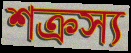
শক্রস্য